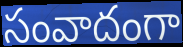
సంవాదంగా